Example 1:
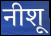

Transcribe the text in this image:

नीशू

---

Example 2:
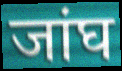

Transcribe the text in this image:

जांघ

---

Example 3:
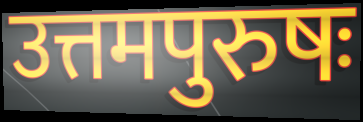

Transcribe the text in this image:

उत्तमपुरुषः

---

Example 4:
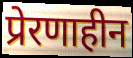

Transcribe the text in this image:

प्रेरणाहीन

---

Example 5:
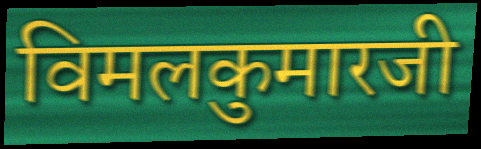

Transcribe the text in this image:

विमलकुमारजी